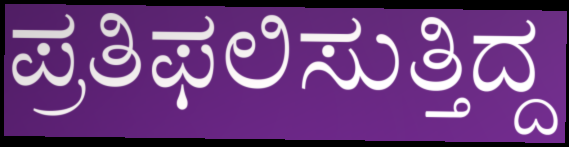
ಪ್ರತಿಫಲಿಸುತ್ತಿದ್ದ